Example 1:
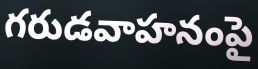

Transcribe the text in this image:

గరుడవాహనంపై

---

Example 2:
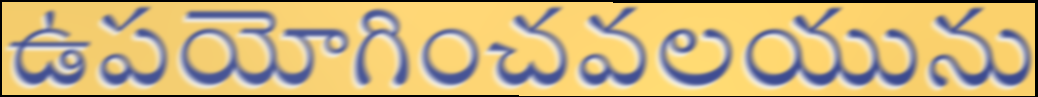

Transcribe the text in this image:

ఉపయోగించవలయును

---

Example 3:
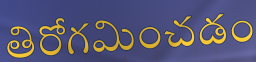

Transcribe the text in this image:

తిరోగమించడం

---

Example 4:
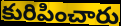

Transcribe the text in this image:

కురిపించారు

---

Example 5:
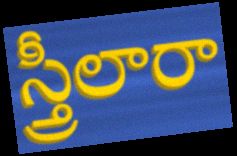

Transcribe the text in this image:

స్త్రీలారా